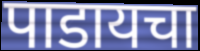
पाडायचा